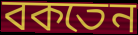
বকতেন